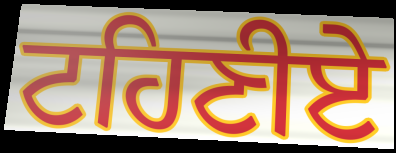
ਟਹਿਣੀਏ